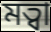
মত্বা